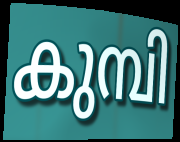
കുമ്പി